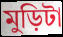
মুড়িটা